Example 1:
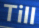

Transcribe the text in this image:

Till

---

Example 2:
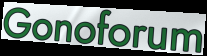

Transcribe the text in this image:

Gonoforum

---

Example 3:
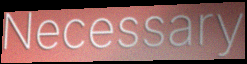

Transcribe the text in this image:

Necessary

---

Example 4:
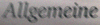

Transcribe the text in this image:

Allgemeine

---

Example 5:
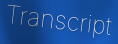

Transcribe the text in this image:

Transcript